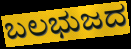
ಬಲಭುಜದ